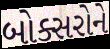
બોક્સરોને